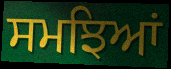
ਸਮਝਿਆਂ